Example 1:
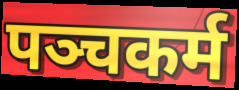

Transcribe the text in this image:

पञ्चकर्म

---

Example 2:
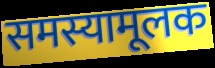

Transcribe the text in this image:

समस्यामूलक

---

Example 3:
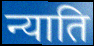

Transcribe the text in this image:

न्याति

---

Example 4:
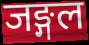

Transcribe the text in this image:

जङ्गल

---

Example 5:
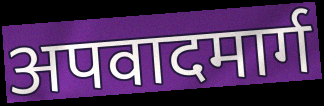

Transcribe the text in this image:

अपवादमार्ग